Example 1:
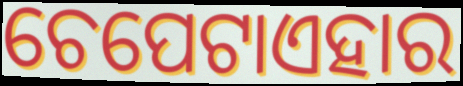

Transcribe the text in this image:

ଚେପେଟାଏହାର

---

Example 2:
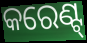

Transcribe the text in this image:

କରେଣ୍ଟ୍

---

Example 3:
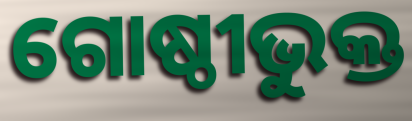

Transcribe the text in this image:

ଗୋଷ୍ଠୀଭୁକ୍ତ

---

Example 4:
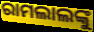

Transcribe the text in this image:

ରାମଲାଲଙ୍କୁ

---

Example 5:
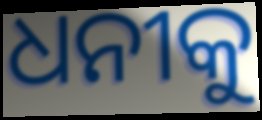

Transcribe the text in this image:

ଧନୀକୁ